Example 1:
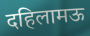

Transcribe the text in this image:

दहिलामऊ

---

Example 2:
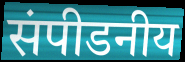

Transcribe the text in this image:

संपीडनीय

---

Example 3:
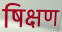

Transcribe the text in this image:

षिक्षण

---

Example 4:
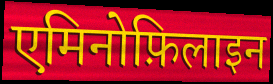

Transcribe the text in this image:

एमिनोफ़िलाइन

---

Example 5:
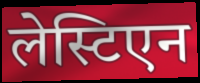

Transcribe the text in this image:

लेस्टिएन